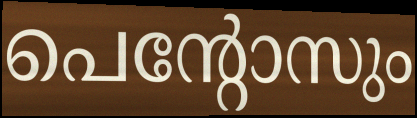
പെന്റോസും